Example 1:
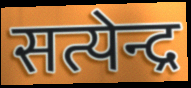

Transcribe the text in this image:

सत्येन्द्र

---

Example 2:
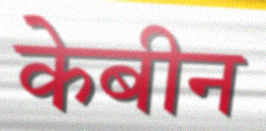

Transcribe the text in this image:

केबीन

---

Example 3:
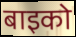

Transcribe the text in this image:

बाइको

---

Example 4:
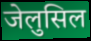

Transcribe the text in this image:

जेलुसिल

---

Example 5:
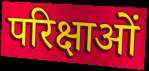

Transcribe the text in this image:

परिक्षाओं